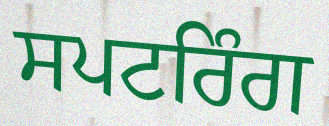
ਸਪਟਰਿੰਗ